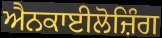
ਐਨਕਾਈਲੋਜ਼ਿੰਗ